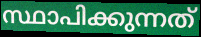
സ്ഥാപിക്കുന്നത്